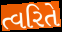
ત્વરિતે